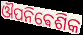
ଔପନିଵେଶିକ